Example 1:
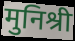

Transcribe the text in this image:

मुनिश्री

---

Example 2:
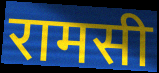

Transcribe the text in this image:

रामसी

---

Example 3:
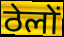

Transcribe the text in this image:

ठेलों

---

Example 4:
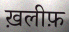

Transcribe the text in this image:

ख़लीफ़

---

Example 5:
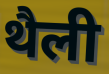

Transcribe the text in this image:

थैली